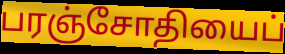
பரஞ்சோதியைப்